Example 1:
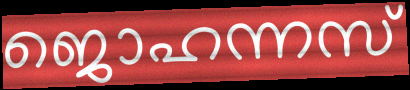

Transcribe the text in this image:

ജൊഹന്നസ്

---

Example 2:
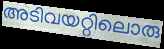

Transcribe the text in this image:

അടിവയറ്റിലൊരു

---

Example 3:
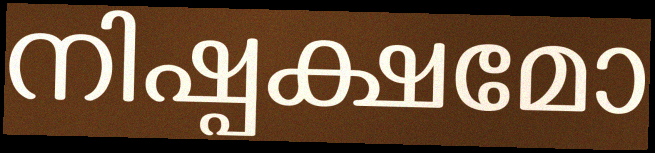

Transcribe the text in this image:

നിഷ്പക്ഷമോ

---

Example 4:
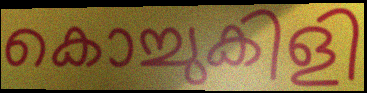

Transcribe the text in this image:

കൊച്ചുകിളി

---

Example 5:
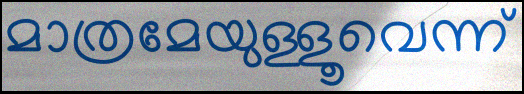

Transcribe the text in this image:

മാത്രമേയുള്ളൂവെന്ന്